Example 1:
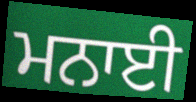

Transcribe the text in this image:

ਮਨਾਈ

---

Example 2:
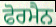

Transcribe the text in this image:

ਫੋਰਮੈਨ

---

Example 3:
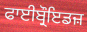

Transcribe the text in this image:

ਫਾਈਬ੍ਰੌਇਡਜ਼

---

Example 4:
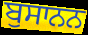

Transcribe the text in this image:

ਬੁਸਾਨਨ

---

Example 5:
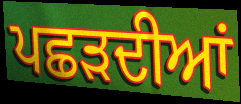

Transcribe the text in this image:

ਪਛੜਦੀਆਂ